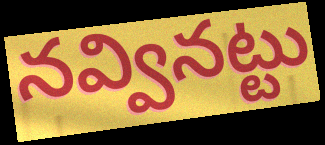
నవ్వినట్టు